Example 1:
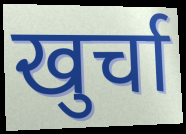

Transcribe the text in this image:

खुर्चा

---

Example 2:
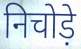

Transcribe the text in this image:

निचोड़े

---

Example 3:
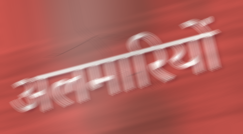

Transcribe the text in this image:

अलमारियों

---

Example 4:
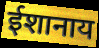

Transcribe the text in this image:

ईशानाय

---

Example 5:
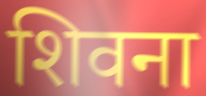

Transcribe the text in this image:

शिवना